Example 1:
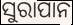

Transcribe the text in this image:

ସୁରାପାନ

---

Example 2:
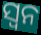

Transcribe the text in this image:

ସ୍ୱନ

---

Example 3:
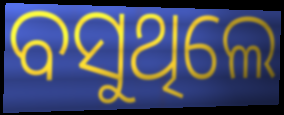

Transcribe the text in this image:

ବସୁଥିଲେ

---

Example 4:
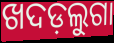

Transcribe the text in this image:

ଖଦଡ଼ଲୁଗା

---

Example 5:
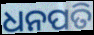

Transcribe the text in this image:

ଧନପତି